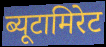
ब्यूटामिरेट